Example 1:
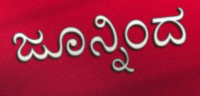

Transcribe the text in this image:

ಜೂನ್ನಿಂದ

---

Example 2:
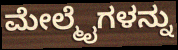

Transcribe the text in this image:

ಮೇಲ್ಮೈಗಳನ್ನು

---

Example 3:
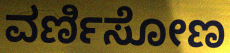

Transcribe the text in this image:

ವರ್ಣಿಸೋಣ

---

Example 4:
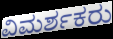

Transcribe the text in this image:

ವಿಮರ್ಶಕರು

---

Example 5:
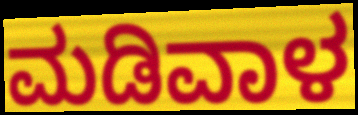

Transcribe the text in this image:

ಮಡಿವಾಳ